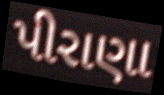
પીરાણા